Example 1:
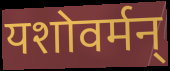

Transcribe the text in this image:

यशोवर्मन्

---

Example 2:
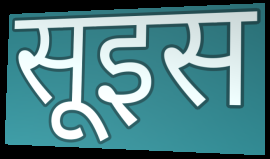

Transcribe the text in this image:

सूइस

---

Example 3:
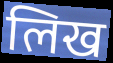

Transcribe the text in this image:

लिख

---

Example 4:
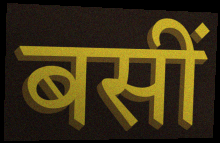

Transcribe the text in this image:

बसीं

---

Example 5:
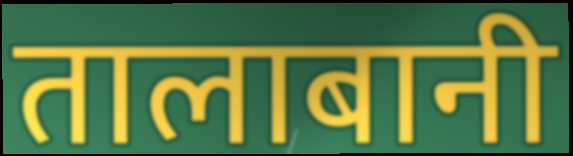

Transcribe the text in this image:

तालाबानी